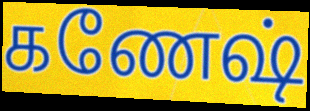
கணேஷ்